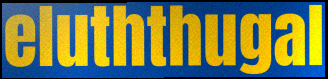
eluththugal